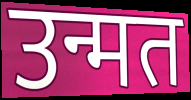
उन्मत